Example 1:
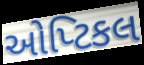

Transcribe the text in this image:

ઓપ્ટિકલ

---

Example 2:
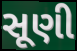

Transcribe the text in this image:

સૂણી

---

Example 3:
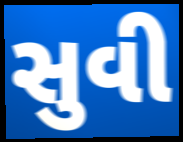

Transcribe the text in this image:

સુવી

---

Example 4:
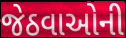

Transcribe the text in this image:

જેઠવાઓની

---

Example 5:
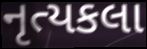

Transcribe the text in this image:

નૃત્યકલા